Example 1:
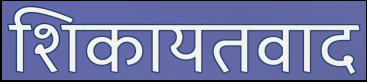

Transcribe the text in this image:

शिकायतवाद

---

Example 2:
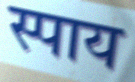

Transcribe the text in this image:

स्पाय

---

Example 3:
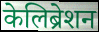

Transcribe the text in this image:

केलिब्रेशन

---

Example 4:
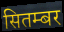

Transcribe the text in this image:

सितम्बर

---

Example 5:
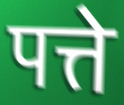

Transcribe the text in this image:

पत्ते